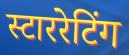
स्टाररेटिंग